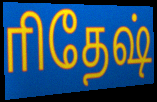
ரிதேஷ்